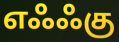
எஃஃகு